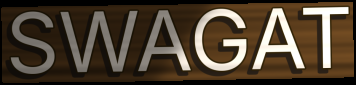
SWAGAT